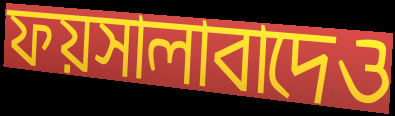
ফয়সালাবাদেও